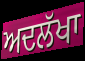
ਅਦਲੱਖਾ